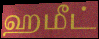
ஹமீட்